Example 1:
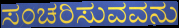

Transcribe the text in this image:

ಸಂಚರಿಸುವವನು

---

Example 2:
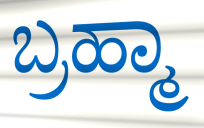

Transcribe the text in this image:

ಬ್ರಹ್ಮಾ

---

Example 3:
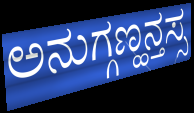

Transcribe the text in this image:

ಅನುಗ್ಗಣ್ಹನ್ತಸ್ಸ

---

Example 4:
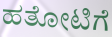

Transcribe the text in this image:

ಹತೋಟಿಗೆ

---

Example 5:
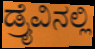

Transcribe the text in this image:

ಡ್ರೈವಿನಲ್ಲಿ